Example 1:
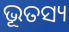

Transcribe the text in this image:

ଭୂତସ୍ୟ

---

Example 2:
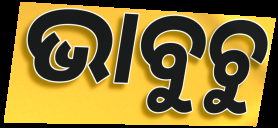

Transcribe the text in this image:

ଭାବୁଚୁ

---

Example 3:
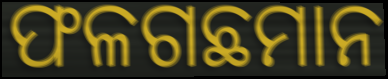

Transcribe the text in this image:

ଫଳଗଛମାନ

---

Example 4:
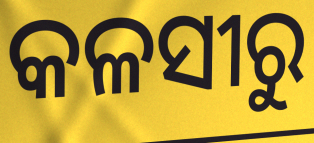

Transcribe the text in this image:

କଳସୀରୁ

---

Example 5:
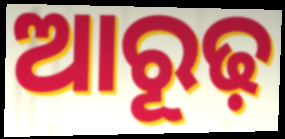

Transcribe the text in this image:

ଆରୂଢ଼